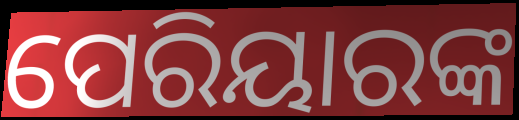
ପେରିୟାରଙ୍କ